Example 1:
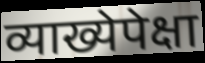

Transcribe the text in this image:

व्याख्येपेक्षा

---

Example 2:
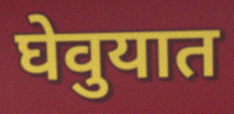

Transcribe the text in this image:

घेवुयात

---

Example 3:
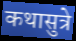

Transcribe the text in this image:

कथासुत्रे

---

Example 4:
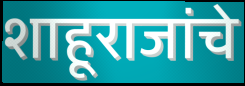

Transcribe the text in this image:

शाहूराजांचे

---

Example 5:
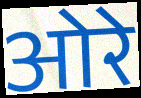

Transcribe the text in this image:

ओरे